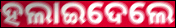
ହଲାଇଦେଲେ